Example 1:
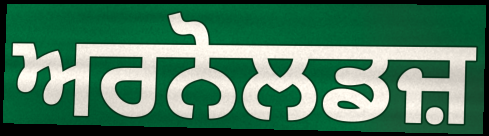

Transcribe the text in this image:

ਅਰਨੋਲਡਜ਼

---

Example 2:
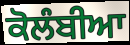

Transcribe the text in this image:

ਕੋਲੰਬੀਆ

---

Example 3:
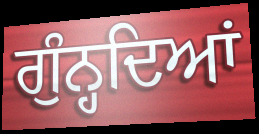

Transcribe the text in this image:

ਗੁੰਨ੍ਹਦਿਆਂ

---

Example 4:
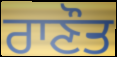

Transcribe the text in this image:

ਰਾਣੌਤ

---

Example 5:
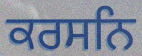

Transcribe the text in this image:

ਕਰਸਨਿ